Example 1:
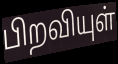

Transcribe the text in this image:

பிறவியுள்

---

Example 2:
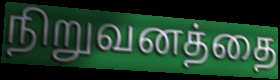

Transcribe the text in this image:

நிறுவனத்தை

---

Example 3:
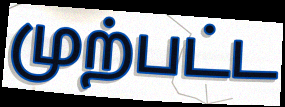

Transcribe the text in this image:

முற்பட்ட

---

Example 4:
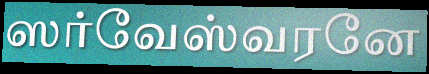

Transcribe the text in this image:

ஸர்வேஸ்வரனே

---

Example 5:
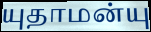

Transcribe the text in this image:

யுதாமன்யு